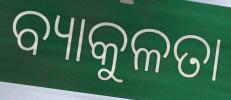
ବ୍ୟାକୁଳତା